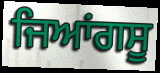
ਜਿਆਂਗਸੂ